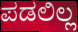
ಪಡಲಿಲ್ಲ